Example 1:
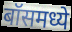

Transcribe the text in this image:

बॉसमध्ये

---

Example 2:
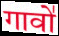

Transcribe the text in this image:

गावो॑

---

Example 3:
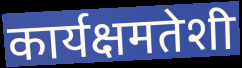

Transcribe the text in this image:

कार्यक्षमतेशी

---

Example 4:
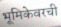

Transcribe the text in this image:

भूमिकेवरची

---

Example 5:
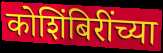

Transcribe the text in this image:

कोशिंबिरींच्या